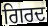
ਗਿਰਦ